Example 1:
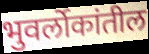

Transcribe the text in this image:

भुवर्लोकांतील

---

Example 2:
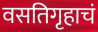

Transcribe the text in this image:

वसतिगृहाचं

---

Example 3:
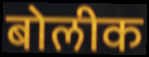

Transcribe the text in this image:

बोलीक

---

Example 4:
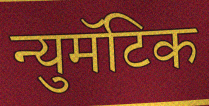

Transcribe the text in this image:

न्युमॅटिक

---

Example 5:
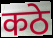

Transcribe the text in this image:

कठे